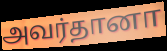
அவர்தானா